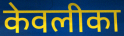
केवलीका